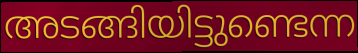
അടങ്ങിയിട്ടുണ്ടെന്ന